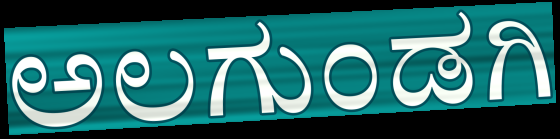
ಅಲಗುಂಡಗಿ